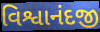
વિશ્વાનંદજી